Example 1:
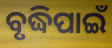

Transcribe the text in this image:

ବୃଦ୍ଧିପାଇଁ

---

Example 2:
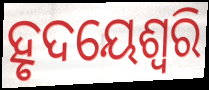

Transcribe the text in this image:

ହୃଦୟେଶ୍ଵରି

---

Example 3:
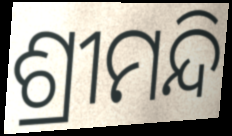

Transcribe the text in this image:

ଶ୍ରୀମନ୍ଦି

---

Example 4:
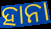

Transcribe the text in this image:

ହାନା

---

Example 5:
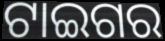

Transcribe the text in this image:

ଟାଇଗର